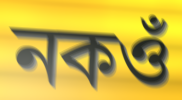
নকওঁ